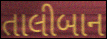
તાલીબાન